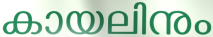
കായലിനും